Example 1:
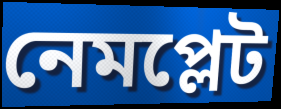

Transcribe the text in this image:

নেমপ্লেট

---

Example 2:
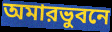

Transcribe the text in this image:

অমারভুবনে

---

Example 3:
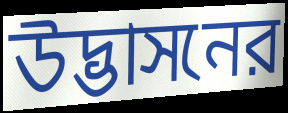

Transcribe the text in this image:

উদ্ভাসনের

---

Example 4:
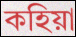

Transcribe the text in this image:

কহিয়া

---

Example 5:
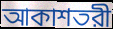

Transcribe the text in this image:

আকাশতরী